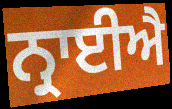
ਨ੍ਰਾਈਐ